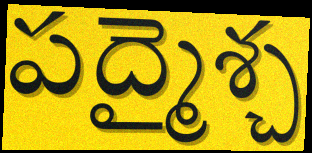
పద్మైశ్చ